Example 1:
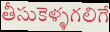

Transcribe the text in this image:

తీసుకెళ్ళగలిగే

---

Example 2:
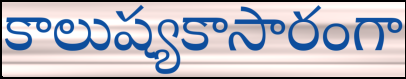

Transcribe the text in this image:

కాలుష్యకాసారంగా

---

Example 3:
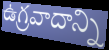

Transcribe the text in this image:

ఉగ్రవాదాన్ని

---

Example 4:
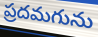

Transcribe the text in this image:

ప్రదమగును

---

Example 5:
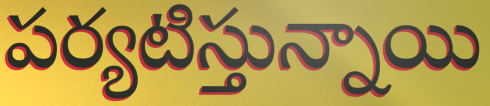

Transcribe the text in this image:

పర్యటిస్తున్నాయి